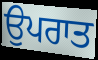
ਉਪਰਾਤ